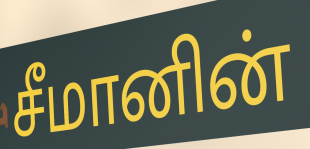
சீமானின்